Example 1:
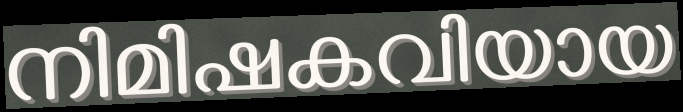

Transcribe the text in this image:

നിമിഷകവിയായ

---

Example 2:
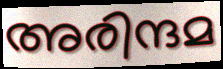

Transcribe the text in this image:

അരിന്ദമ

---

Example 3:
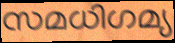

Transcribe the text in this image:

സമധിഗമ്യ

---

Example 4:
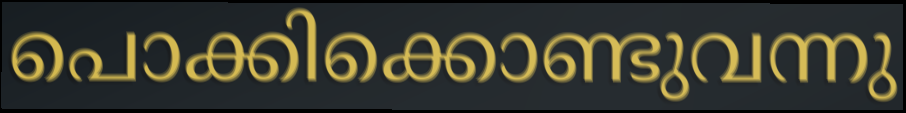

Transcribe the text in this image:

പൊക്കിക്കൊണ്ടുവന്നു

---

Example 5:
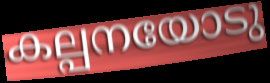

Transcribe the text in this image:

കല്പനയോടു